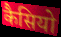
कैसियो